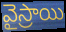
వైస్రాయి